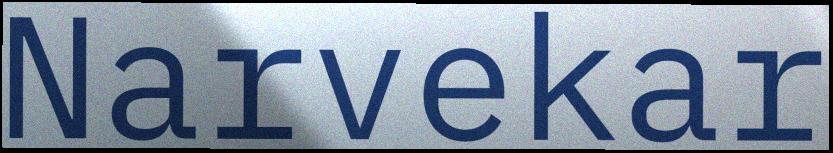
Narvekar